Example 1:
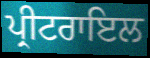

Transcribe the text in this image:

ਪ੍ਰੀਟਰਾਇਲ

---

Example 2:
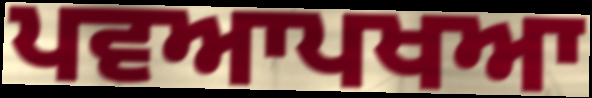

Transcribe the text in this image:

ਪਵਆਪਖਆ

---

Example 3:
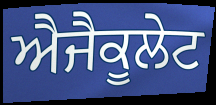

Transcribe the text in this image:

ਐਜੈਕੂਲੇਟ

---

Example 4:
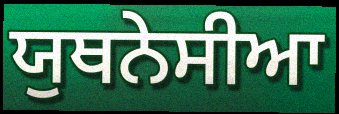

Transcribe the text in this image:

ਯੁਥਨੇਸੀਆ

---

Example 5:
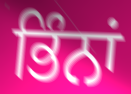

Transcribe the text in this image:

ਭਿੰਨਾਂ